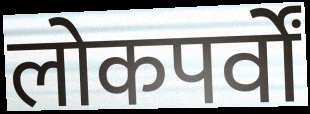
लोकपर्वों